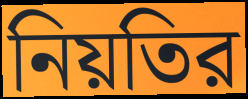
নিয়তির